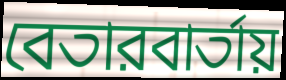
বেতারবার্তায়